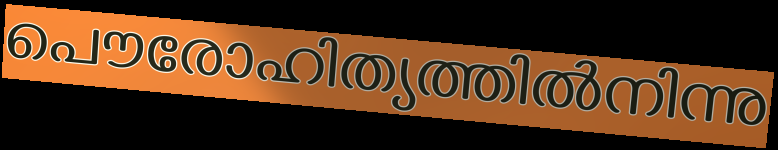
പൌരോഹിത്യത്തിൽനിന്നു